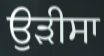
ਉੜੀਸਾ